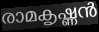
രാമകൃഷ്ണൻ